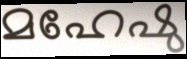
മഹേഷു